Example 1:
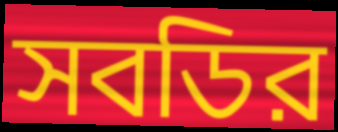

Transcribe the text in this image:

সবডির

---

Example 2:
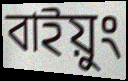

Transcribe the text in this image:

বাইয়ুং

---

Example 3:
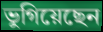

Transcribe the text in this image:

ভুগিয়েছেন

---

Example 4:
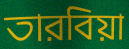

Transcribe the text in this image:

তারবিয়া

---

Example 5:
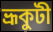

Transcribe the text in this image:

ভ্রূকুটী